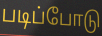
படிப்போடு